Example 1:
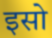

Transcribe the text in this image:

इसो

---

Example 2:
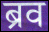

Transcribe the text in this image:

ब्रव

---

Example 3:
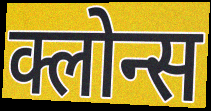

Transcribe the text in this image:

क्लोन्स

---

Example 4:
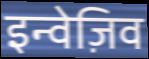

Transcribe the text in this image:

इन्वेज़िव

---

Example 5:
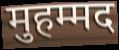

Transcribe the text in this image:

मुहम्‍मद